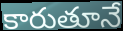
కారుతూనే